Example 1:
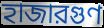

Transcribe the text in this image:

হাজারগুণ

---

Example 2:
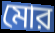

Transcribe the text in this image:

মোর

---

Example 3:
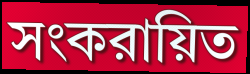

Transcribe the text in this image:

সংকরায়িত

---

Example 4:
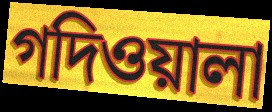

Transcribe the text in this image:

গদিওয়ালা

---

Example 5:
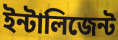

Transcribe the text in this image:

ইন্টালিজেন্ট